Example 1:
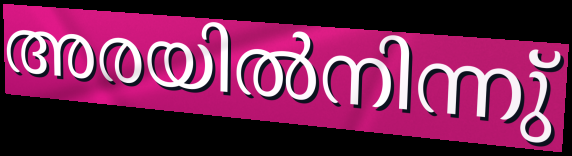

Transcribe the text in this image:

അരയിൽനിന്നു്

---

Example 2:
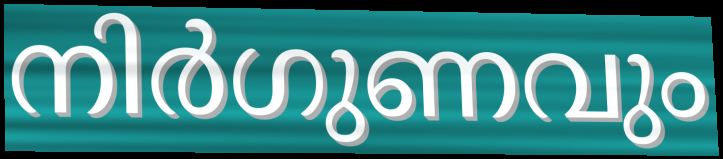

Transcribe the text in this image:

നിർഗുണവും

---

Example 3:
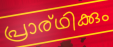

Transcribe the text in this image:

പ്രാര്ഥിക്കും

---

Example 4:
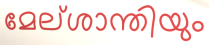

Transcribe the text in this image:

മേല്ശാന്തിയും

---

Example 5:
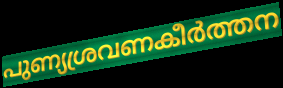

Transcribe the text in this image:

പുണ്യശ്രവണകീർത്തന